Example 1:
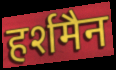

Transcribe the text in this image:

हर्शमैन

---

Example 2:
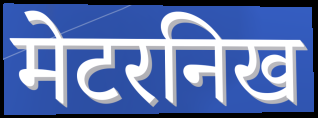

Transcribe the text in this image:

मेटरनिख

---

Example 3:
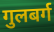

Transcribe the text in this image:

गुलबर्ग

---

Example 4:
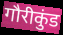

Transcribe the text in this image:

गौरीकुंड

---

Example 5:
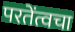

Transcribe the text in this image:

परतेंत्वचा